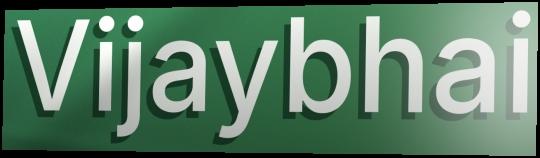
Vijaybhai